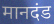
मानदंड